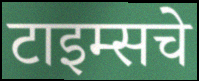
टाइम्सचे